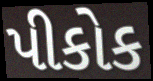
પીકોક